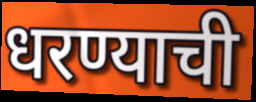
धरण्याची